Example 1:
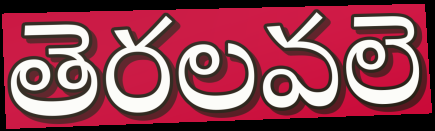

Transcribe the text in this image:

తెరలవలె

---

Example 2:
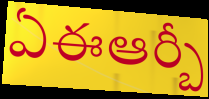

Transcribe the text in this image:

ఏఈఆర్బీ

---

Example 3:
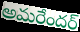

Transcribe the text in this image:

అమరేందర్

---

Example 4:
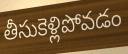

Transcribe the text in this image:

తీసుకెళ్లిపోవడం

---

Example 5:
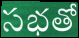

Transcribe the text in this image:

సభతో